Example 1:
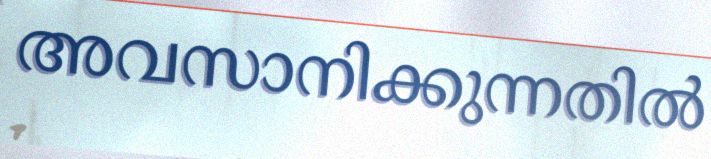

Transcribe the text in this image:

അവസാനിക്കുന്നതിൽ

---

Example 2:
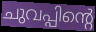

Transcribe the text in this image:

ചുവപ്പിന്റെ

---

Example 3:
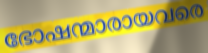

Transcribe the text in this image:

ഭോഷന്മാരായവരെ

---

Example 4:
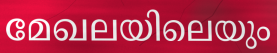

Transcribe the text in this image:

മേഖലയിലെയും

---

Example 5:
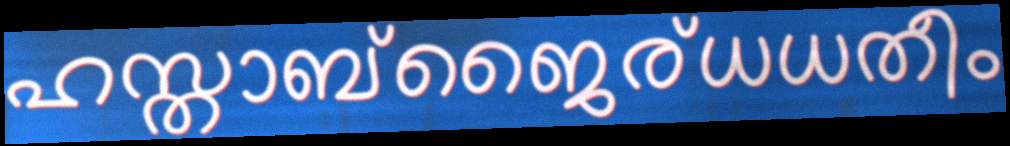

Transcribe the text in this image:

ഹസ്താബ്ജൈര്ധധതീം